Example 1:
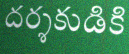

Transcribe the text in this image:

దర్శకుడికి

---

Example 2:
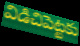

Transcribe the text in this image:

విడిచిపెట్టకు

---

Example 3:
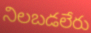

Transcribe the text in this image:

నిలబడలేరు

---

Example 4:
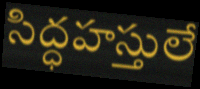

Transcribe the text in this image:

సిద్ధహస్తులే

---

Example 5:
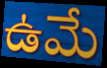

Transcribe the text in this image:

ఉమే